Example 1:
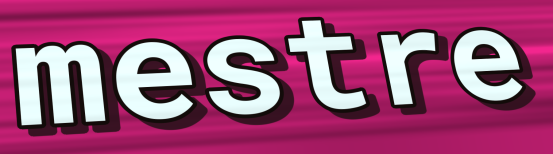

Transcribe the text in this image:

mestre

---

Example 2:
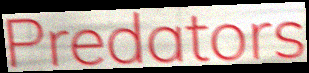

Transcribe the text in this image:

Predators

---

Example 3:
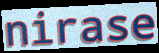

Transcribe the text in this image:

nirase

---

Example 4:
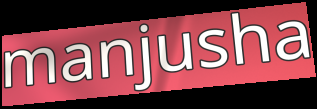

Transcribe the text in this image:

manjusha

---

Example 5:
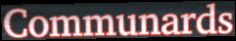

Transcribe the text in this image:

Communards